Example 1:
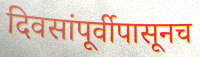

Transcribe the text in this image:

दिवसांपूर्वीपासूनच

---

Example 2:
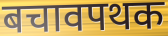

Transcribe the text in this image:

बचावपथक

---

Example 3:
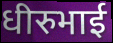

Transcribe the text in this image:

धीरुभाई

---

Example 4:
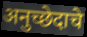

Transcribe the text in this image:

अनुच्छेदाचे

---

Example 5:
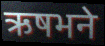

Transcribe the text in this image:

ऋषभने